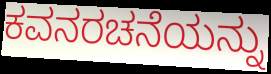
ಕವನರಚನೆಯನ್ನು